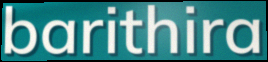
barithira